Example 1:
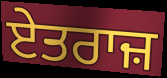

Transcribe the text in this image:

ਏਤਰਾਜ਼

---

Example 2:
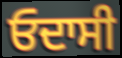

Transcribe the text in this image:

ਓਦਾਸੀ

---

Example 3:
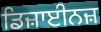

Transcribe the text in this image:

ਡਿਜ਼ਾਈਨਜ਼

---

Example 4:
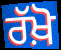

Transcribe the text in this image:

ਰੱਖ਼ੋ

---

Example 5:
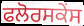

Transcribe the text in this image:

ਫਲੋਰਸਕੇਂਸ